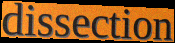
dissection